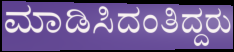
ಮಾಡಿಸಿದಂತಿದ್ದರು